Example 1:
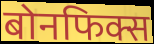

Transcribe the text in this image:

बोनफिक्स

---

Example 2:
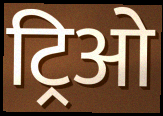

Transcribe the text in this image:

ट्रिओ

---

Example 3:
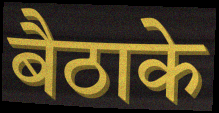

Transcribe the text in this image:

बैठाके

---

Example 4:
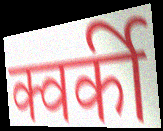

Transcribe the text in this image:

क्वर्की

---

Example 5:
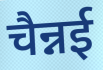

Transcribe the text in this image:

चैन्नई